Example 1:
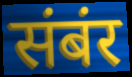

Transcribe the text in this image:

संबंर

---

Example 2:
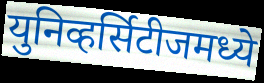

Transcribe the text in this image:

युनिव्हर्सिटीजमध्ये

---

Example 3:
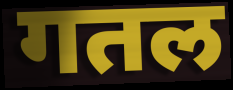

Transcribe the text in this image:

गतल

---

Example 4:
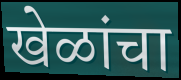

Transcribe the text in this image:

खेळांचा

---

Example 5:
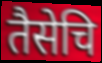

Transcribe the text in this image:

तैसेचि